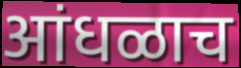
आंधळाच